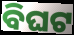
ବିଘଟ